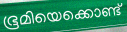
ഭൂമിയെക്കൊണ്ട്